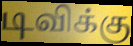
டிவிக்கு